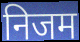
निजम